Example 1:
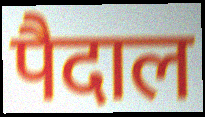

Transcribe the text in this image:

पैदाल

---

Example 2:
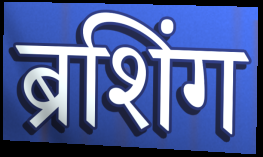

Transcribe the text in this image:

ब्रशिंग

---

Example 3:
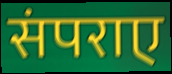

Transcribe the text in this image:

संपराए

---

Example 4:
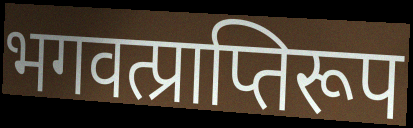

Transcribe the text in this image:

भगवत्प्राप्तिरूप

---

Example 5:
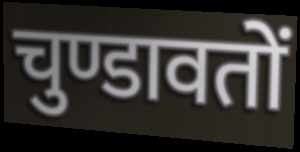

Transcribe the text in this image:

चुण्डावतों